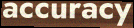
accuracy